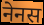
नेनस